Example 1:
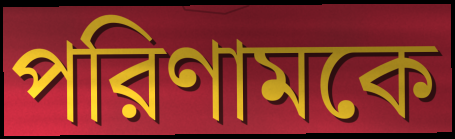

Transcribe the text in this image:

পরিণামকে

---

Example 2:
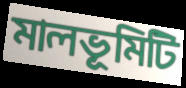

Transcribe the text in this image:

মালভূমিটি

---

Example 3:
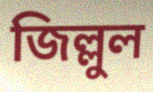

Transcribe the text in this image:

জিল্লুল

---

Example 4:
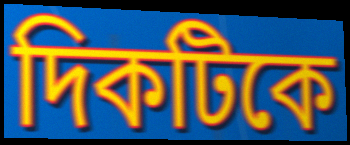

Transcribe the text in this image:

দিকটিকে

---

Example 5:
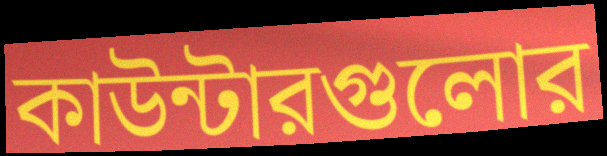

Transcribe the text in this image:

কাউন্টারগুলোর